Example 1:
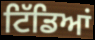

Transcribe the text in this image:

ਟਿੱਡਿਆਂ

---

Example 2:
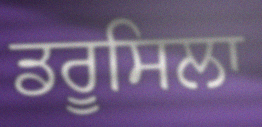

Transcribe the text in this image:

ਡਰੂਸਿਲਾ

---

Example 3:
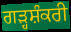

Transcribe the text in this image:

ਗੜ੍ਹਸ਼ੰਕਰੀ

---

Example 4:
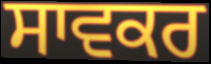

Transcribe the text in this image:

ਸਾਵਕਰ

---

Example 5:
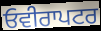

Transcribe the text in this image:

ਓਵੀਰਾਪਟਰ